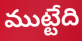
ముట్టేది